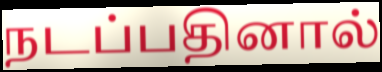
நடப்பதினால்